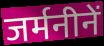
जर्मनीनें